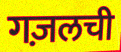
गज़लची